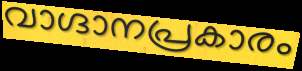
വാഗ്ദാനപ്രകാരം